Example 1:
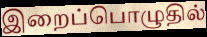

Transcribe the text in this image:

இறைப்பொழுதில்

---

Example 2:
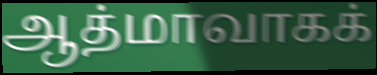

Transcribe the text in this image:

ஆத்மாவாகக்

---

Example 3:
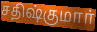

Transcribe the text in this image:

சதிஷ்குமார்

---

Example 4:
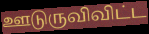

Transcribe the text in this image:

ஊடுருவிவிட்ட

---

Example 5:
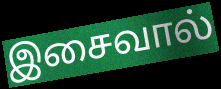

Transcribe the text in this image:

இசைவால்